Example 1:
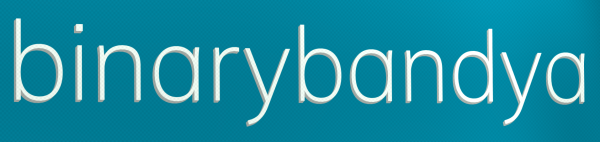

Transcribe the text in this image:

binarybandya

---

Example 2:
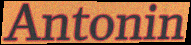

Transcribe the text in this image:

Antonin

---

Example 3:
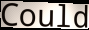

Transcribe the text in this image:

Could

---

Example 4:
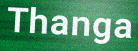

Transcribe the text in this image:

Thanga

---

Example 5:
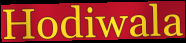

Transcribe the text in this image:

Hodiwala